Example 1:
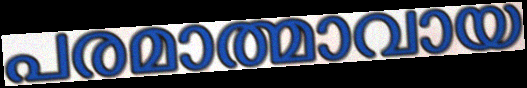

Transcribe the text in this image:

പരമാത്മാവായ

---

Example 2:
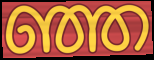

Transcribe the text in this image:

ഞ്ഞ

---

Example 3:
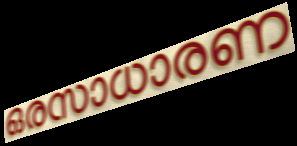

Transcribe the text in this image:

ഒരസാധാരണ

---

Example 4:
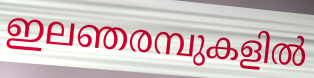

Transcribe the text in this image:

ഇലഞരമ്പുകളിൽ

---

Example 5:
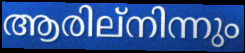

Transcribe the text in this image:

ആരില്നിന്നും